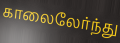
காலைலேர்ந்து